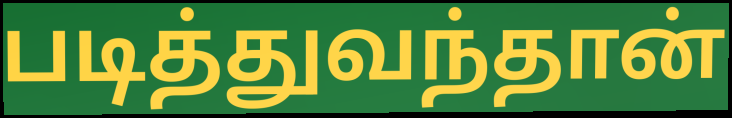
படித்துவந்தான்